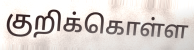
குறிக்கொள்ள